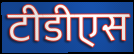
टीडीएस